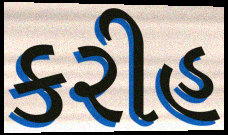
કરીહ